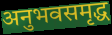
अनुभवसमृद्ध